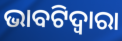
ଭାବଟିଦ୍ୱାରା